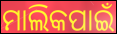
ମାଲିକପାଇଁ